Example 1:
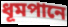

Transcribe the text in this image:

ধূমপানে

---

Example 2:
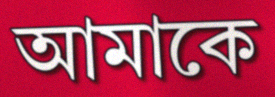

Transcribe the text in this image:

আমাকে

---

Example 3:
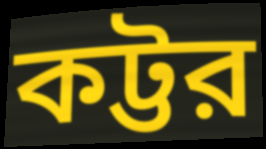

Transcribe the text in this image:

কট্টর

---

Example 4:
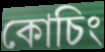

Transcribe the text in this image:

কোচিং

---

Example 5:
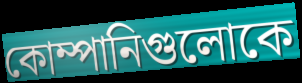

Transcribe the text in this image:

কোম্পানিগুলোকে